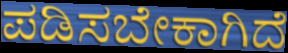
ಪಡಿಸಬೇಕಾಗಿದೆ